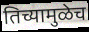
तिच्यामुळेच